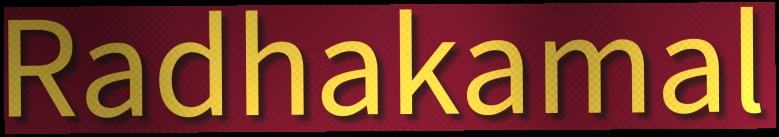
Radhakamal